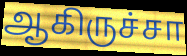
ஆகிருச்சா